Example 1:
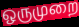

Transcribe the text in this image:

ஒருமுறை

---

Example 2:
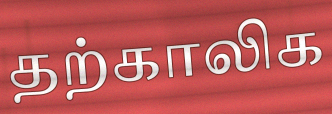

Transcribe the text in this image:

தற்காலிக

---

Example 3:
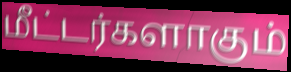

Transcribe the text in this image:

மீட்டர்களாகும்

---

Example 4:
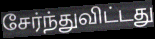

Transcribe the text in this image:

சேர்ந்துவிட்டது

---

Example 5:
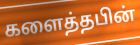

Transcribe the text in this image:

களைத்தபின்